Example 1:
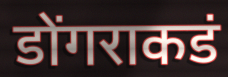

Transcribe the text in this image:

डोंगराकडं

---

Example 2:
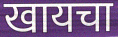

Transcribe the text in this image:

खायचा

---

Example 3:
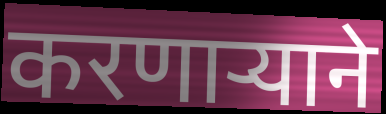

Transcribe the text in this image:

करणाऱ्याने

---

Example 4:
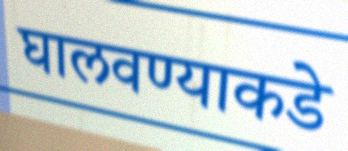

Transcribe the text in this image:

घालवण्याकडे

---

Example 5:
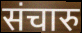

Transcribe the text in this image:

संचारु